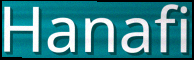
Hanafi